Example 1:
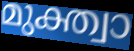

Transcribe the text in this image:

മുക്ത്വാ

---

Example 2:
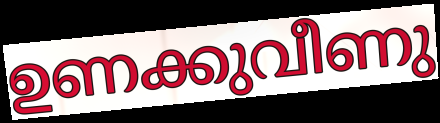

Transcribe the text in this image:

ഉണക്കുവീണു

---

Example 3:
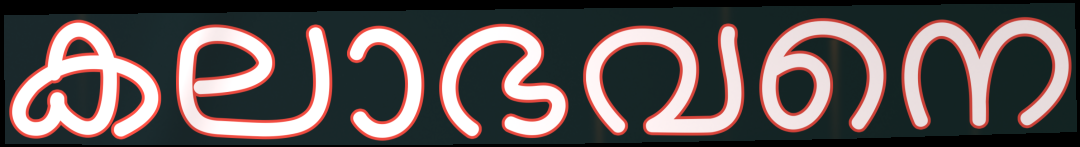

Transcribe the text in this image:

കലാഭവനെ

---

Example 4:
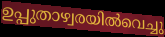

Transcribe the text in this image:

ഉപ്പുതാഴ്വരയിൽവെച്ചു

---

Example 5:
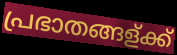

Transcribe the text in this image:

പ്രഭാതങ്ങള്ക്ക്